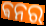
ଵନର